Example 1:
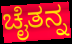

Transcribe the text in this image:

ಚೈತನ್ನ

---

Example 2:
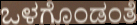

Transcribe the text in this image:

ಒಳಗೊಂಡಂತೆ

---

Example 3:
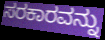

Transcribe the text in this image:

ಸರಕಾರವನ್ನು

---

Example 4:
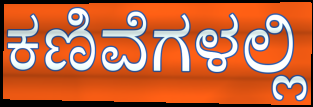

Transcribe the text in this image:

ಕಣಿವೆಗಳಲ್ಲಿ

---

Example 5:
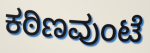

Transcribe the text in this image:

ಕಠಿಣವುಂಟೆ